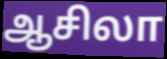
ஆசிலா